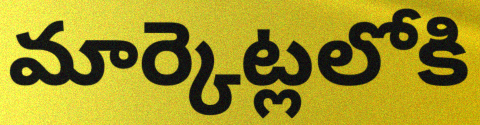
మార్కెట్లలోకి